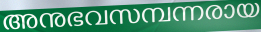
അനുഭവസമ്പന്നരായ